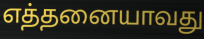
எத்தனையாவது